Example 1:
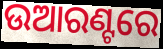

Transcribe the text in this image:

ଉଆରଣ୍ଟରେ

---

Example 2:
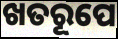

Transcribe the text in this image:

ଖତରୂପେ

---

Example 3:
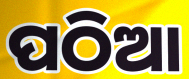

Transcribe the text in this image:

ପଠିଆ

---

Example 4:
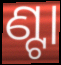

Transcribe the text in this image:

ଣ୍ଟା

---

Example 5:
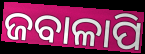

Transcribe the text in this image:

ଜବାଳାପି